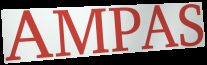
AMPAS